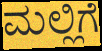
ಮಲ್ಲಿಗೆ